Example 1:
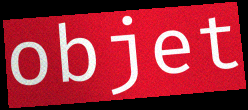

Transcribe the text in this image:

objet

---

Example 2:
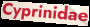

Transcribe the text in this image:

Cyprinidae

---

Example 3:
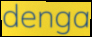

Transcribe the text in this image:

denga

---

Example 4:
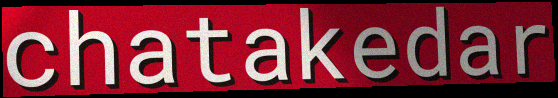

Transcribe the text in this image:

chatakedar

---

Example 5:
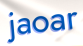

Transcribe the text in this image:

jaoar